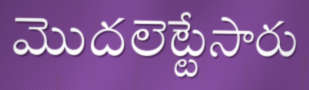
మొదలెట్టేసారు